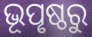
ଭୂପୃଷ୍ଠରୁ